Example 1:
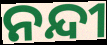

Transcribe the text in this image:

ନନ୍ଦୀ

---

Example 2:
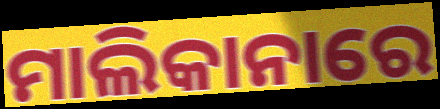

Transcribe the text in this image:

ମାଲିକାନାରେ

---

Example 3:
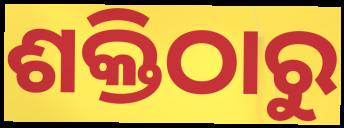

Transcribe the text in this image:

ଶକ୍ତିଠାରୁ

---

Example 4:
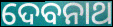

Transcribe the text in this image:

ଦେବନାଥ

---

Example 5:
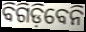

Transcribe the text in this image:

ବିଗିଡ଼ିବେନି